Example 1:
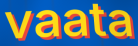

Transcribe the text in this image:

vaata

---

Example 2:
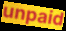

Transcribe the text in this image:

unpaid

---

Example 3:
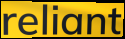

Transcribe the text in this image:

reliant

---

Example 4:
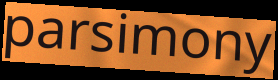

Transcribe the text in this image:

parsimony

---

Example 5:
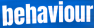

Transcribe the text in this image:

behaviour